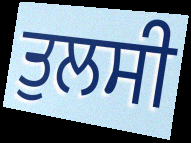
ਤੁਲਸੀ